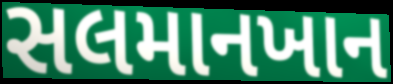
સલમાનખાન